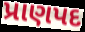
પ્રાણપદ